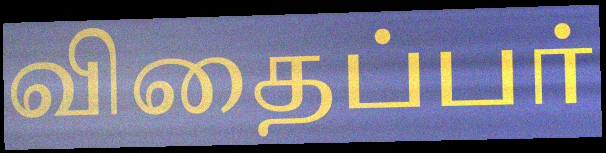
விதைப்பர்